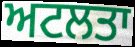
ਅਟਲਤਾ